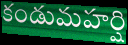
కండుమహర్షి